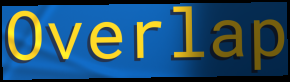
Overlap